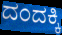
ದಂದಕ್ಕಿ